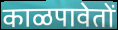
काळपावेतों